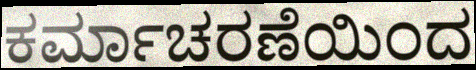
ಕರ್ಮಾಚರಣೆಯಿಂದ